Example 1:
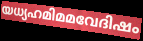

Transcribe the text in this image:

യധ്യഹമിമമവേദിഷം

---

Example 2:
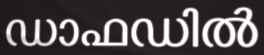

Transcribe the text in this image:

ഡാഫഡിൽ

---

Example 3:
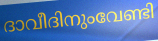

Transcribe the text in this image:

ദാവീദിനുംവേണ്ടി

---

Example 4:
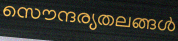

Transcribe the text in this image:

സൌന്ദര്യതലങ്ങൾ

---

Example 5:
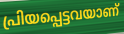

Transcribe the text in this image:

പ്രിയപ്പെട്ടവയാണ്